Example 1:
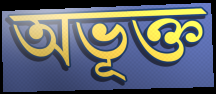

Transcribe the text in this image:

অভূক্ত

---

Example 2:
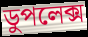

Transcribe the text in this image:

ডুপলেক্স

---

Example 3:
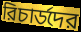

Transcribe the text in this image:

রিচার্ডদের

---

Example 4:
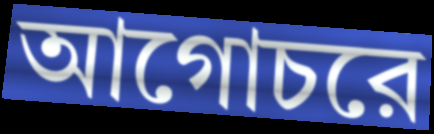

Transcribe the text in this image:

আগোচরে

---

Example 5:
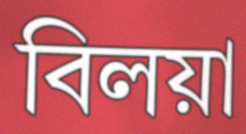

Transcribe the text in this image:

বিলয়া